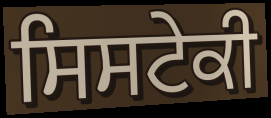
ਸਿਸਟੇਕੀ